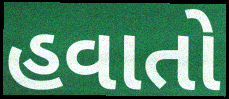
હવાતો